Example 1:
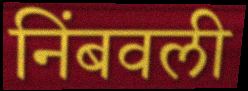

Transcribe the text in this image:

निंबवली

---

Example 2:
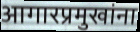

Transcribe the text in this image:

आगारप्रमुखांना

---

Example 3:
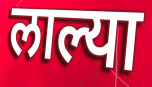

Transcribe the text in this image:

लाल्या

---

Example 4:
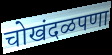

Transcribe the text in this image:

चोखंदळपणा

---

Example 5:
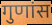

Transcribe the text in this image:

गुणांस